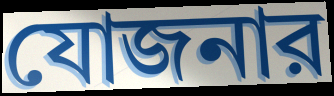
যোজনার